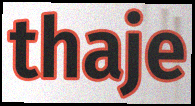
thaje